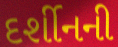
દર્શીનની